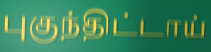
புகுந்திட்டாய்